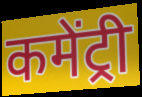
कमेंट्री